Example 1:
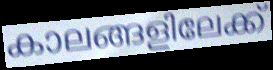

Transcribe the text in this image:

കാലങ്ങളിലേക്ക്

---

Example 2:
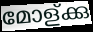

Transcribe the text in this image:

മോള്ക്കു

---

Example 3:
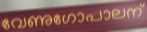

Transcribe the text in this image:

വേണുഗോപാലന്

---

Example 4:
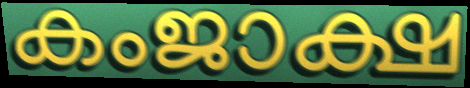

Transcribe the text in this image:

കംജാക്ഷ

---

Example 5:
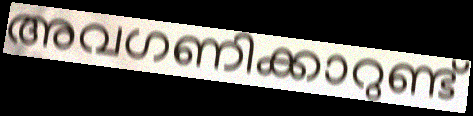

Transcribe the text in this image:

അവഗണിക്കാറുണ്ട്